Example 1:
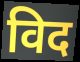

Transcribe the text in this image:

विद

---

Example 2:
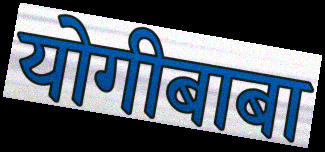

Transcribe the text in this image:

योगीबाबा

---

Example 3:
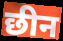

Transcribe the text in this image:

छीन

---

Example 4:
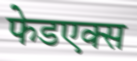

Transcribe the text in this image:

फेडएक्स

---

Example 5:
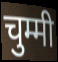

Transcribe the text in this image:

चुम्मी